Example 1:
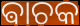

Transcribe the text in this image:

ଵାଚକ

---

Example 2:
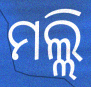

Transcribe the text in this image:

ମଲ୍ଲି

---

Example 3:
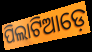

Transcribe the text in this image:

ପିଲାଟିଆଡ଼େ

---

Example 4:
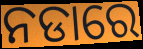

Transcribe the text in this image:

ନଡାରେ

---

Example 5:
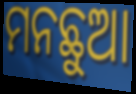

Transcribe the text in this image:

ମନଛୁଆ